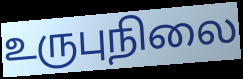
உருபுநிலை